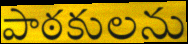
పాఠకులను